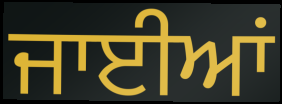
ਜਾਈਆਂ